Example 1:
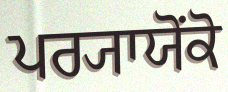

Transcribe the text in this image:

ਪਰ੍ਯਾਯੋਂਕੋ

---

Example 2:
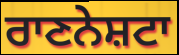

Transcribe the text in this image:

ਰਾਣਨੇਸ਼ਟਾ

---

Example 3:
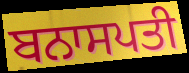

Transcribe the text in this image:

ਬਨਾਸਪਤੀ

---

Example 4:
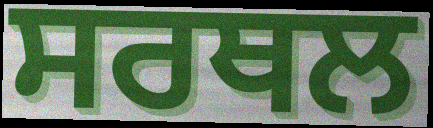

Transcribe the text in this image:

ਸਰਥਲ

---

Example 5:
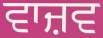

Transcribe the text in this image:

ਵਾਜ਼ਵ